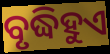
ବୃଦ୍ଧିହୁଏ